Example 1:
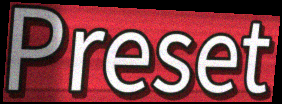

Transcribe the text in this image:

Preset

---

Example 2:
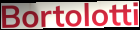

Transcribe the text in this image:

Bortolotti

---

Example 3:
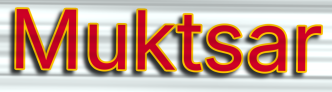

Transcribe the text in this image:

Muktsar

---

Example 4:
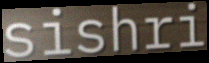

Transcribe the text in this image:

sishri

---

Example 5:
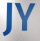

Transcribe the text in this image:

JY